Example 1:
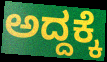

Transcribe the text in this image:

ಅದ್ದಕ್ಕೆ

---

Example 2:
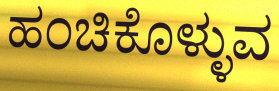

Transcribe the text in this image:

ಹಂಚಿಕೊಳ್ಳುವ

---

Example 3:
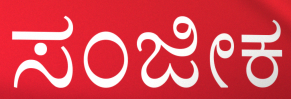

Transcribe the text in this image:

ಸಂಜೀಕ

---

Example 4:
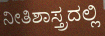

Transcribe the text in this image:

ನೀತಿಶಾಸ್ತ್ರದಲ್ಲಿ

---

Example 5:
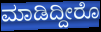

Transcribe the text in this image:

ಮಾಡಿದ್ದೀರೊ